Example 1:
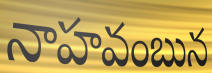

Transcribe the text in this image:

నాహవంబున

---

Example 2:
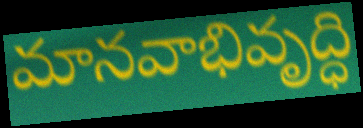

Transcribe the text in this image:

మానవాభివృద్ధి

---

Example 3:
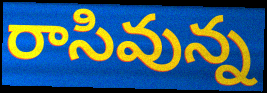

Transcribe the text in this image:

రాసివున్న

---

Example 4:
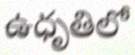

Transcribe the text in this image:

ఉధృతిలో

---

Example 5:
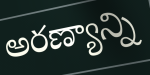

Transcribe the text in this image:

అరణ్యాన్ని